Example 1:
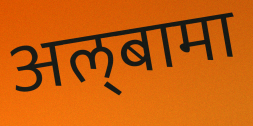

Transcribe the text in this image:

अल्बामा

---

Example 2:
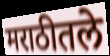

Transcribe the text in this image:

मराठीतले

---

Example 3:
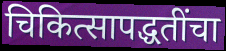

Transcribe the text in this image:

चिकित्सापद्धतींचा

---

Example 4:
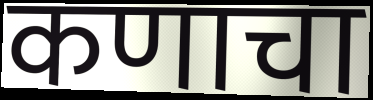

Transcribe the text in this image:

कणाचा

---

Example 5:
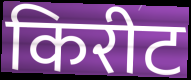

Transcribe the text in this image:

किरीट